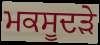
ਮਕਸੂਦੜੇ